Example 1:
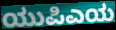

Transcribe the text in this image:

ಯುಪಿಎಯ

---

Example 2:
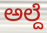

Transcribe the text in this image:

ಅಲ್ದೆ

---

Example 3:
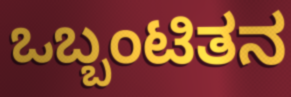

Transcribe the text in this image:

ಒಬ್ಬಂಟಿತನ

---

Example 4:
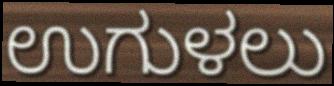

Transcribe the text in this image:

ಉಗುಳಲು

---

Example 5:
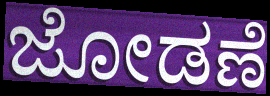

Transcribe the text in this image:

ಜೋಡಣೆ